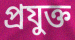
প্রযুক্ত